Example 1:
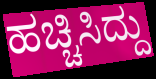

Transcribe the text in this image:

ಹಚ್ಚಿಸಿದ್ದು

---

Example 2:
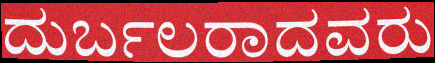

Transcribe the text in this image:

ದುರ್ಬಲರಾದವರು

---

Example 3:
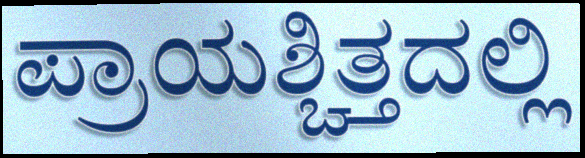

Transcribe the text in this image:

ಪ್ರಾಯಶ್ಚಿತ್ತದಲ್ಲಿ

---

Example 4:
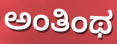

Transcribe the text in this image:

ಅಂತಿಂಥ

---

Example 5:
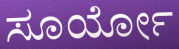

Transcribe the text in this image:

ಸೂರ್ಯೋ